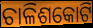
ଚାଳିଶକୋଟି